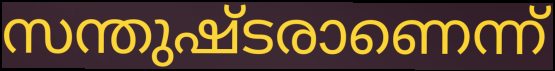
സന്തുഷ്ടരാണെന്ന്